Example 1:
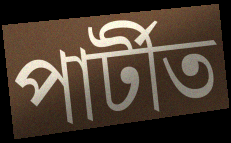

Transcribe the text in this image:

পাৰ্টীত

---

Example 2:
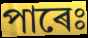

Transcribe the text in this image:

পাৰেঃ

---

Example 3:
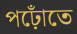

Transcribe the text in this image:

পঢ়োঁতে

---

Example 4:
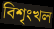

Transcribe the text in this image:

বিশৃংখল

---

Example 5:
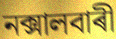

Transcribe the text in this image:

নক্সালবাৰী